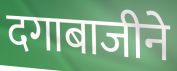
दगाबाजीने